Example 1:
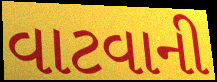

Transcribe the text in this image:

વાટવાની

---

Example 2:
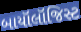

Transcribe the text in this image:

બાયૉલૉજિસ્ટ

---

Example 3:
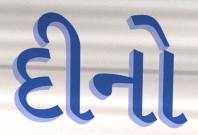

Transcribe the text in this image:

દીનો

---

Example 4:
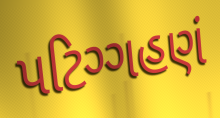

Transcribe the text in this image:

પટિગ્ગહણં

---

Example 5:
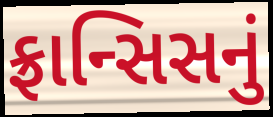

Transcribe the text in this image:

ફ્રાન્સિસનું